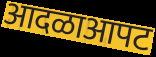
आदळाआपट